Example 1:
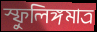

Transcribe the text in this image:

স্ফুলিঙ্গমাত্র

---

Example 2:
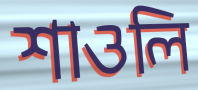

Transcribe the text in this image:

শাওলি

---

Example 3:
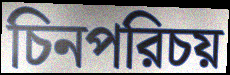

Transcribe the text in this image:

চিনপরিচয়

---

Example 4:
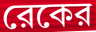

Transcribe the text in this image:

রেকের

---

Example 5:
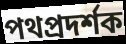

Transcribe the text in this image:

পথপ্রদর্শক